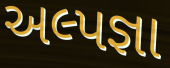
અલ્પજ્ઞા